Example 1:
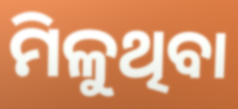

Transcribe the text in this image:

ମିଳୁଥିବା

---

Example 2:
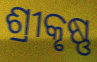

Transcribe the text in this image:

ଶ୍ରୀକୃଷ୍ଣ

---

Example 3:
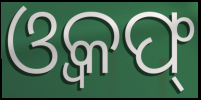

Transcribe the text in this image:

ଓ୍ୱକଫ୍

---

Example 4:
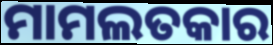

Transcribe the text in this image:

ମାମଲତକାର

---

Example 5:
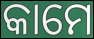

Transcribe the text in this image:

କାମେ